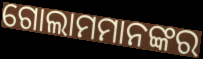
ଗୋଲାମମାନଙ୍କର